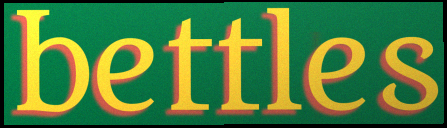
bettles